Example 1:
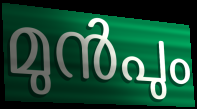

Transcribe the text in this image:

മുൻപും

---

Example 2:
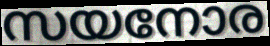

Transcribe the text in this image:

സയനോര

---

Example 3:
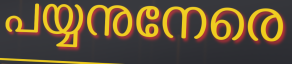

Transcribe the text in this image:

പയ്യനുനേരെ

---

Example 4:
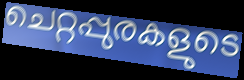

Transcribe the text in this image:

ചെറ്റപ്പുരകളുടെ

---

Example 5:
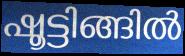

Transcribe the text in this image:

ഷൂട്ടിങ്ങിൽ